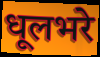
धूलभरे